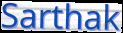
Sarthak